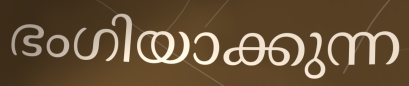
ഭംഗിയാക്കുന്ന